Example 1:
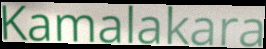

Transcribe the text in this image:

Kamalakara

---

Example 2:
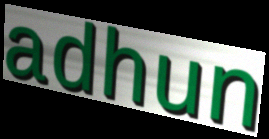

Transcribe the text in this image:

adhun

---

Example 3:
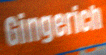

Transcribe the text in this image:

Gingerich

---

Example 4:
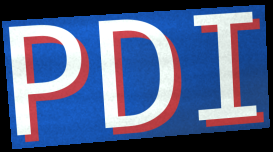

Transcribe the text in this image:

PDI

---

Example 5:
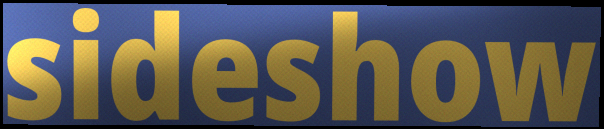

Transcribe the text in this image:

sideshow